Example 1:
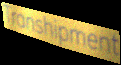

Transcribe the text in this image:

Transhipment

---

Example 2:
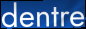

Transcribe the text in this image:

dentre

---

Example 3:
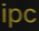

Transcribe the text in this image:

ipc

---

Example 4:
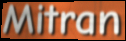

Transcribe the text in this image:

Mitran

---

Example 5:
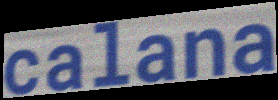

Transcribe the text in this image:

calana